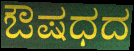
ಔಷಧದ